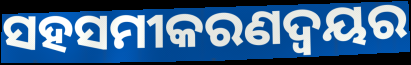
ସହସମୀକରଣଦ୍ୱୟର